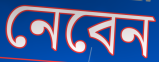
নেবেন